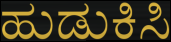
ಹುಡುಕಿಸಿ